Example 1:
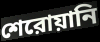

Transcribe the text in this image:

শেরোয়ানি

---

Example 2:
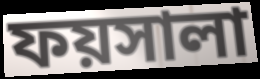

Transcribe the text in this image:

ফয়সালা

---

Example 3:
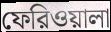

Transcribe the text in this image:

ফেরিওয়ালা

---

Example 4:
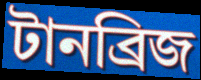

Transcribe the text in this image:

টানব্রিজ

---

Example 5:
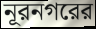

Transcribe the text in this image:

নূরনগরের